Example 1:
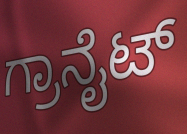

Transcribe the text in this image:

ಗ್ರಾನೈಟ್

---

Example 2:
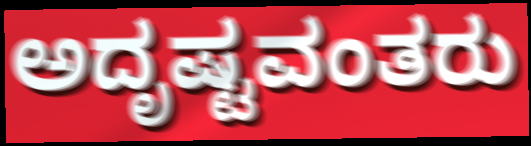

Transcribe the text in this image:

ಅದೃಷ್ಟವಂತರು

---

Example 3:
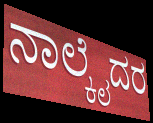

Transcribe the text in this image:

ನಾಲ್ಕೈದರ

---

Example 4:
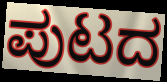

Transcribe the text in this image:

ಪುಟದ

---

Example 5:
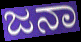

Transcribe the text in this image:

ಜನಾ